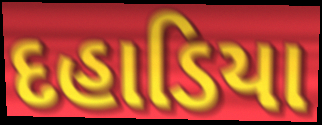
દહાડિયા